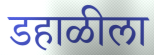
डहाळीला